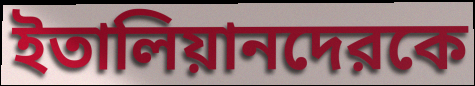
ইতালিয়ানদেরকে